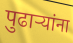
पुढाऱ्यांना